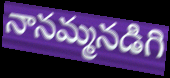
నానమ్మనడిగి